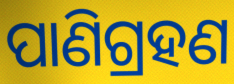
ପାଣିଗ୍ରହଣ